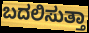
ಬದಲಿಸುತ್ತಾ